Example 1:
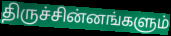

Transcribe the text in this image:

திருச்சின்னங்களும்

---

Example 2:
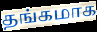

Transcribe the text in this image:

தங்கமாக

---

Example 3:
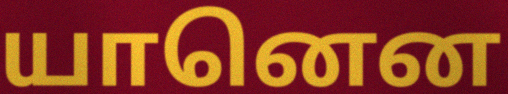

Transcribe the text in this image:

யானென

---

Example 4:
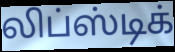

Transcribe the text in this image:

லிப்ஸ்டிக்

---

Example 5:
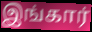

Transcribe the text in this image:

இங்கார்